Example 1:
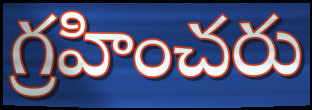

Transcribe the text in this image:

గ్రహించరు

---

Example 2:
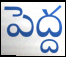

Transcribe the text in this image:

పెద్ద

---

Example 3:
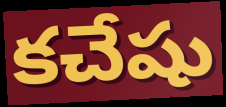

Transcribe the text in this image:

కచేషు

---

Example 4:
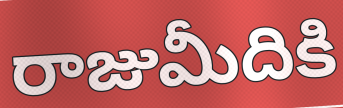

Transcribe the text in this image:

రాజుమీదికి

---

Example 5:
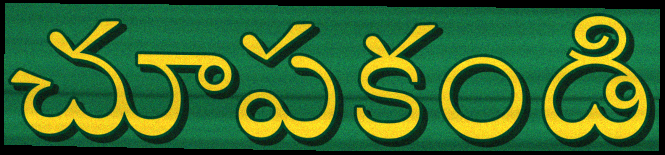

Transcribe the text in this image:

చూపకండి